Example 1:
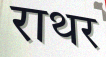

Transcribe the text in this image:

राथर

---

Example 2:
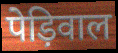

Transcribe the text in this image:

पेड़िवाल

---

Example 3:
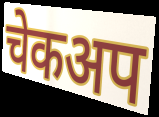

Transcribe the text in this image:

चेकअप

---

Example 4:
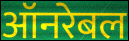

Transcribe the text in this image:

ऑनरेबल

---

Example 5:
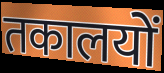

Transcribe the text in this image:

तकालयों